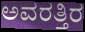
ಅವರತ್ತಿರ